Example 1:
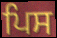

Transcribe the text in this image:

ਪਿਸ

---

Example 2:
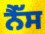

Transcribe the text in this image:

ਨੈੱਸ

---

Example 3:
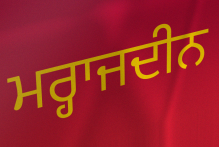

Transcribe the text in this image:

ਮਰ੍ਹਾਜਦੀਨ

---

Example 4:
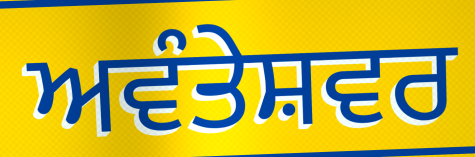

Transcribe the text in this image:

ਅਵੰਤੇਸ਼ਵਰ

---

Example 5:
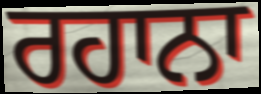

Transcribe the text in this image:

ਰਹਾਨਾ